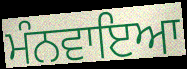
ਮੰਨਵਾਇਆ